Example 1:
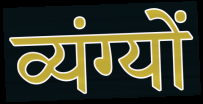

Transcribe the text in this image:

व्यंग्यों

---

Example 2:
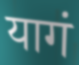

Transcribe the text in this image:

यागं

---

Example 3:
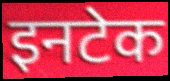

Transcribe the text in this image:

इनटेक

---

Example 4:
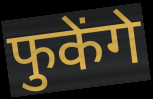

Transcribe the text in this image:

फुकेंगे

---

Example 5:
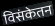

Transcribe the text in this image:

विसंकेतन